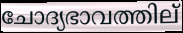
ചോദ്യഭാവത്തില്